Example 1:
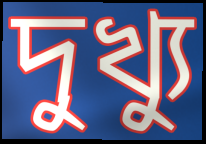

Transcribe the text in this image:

দুখ্যু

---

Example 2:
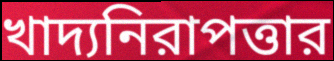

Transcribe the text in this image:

খাদ্যনিরাপত্তার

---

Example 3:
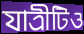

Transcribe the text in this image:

যাত্রীটিও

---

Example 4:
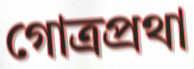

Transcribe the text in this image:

গোত্রপ্রথা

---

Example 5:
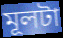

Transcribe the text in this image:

মূলটা